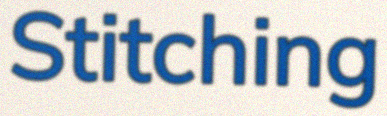
Stitching